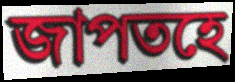
জাপতহে